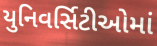
યુનિવર્સિટીઓમાં